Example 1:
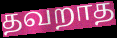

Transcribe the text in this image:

தவறாத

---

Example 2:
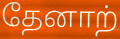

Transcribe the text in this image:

தேனாற்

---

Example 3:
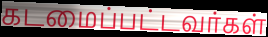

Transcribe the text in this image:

கடமைப்பட்டவர்கள்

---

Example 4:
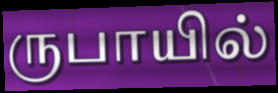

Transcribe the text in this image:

ருபாயில்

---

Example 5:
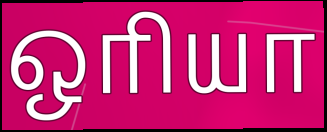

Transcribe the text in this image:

ஒரியா